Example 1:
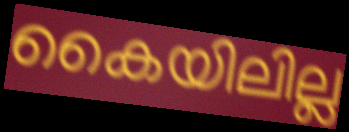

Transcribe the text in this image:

കൈയിലില്ല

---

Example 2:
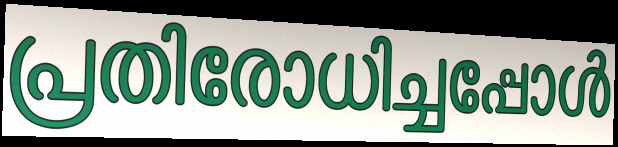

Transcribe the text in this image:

പ്രതിരോധിച്ചപ്പോൾ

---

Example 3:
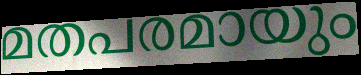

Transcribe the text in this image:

മതപരമായും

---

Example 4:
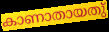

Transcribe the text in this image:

കാണാതായതു്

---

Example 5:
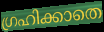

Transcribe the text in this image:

ഗ്രഹിക്കാതെ